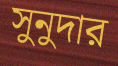
সুনুদার